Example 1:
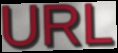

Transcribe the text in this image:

URL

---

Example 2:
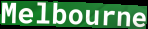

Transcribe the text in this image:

Melbourne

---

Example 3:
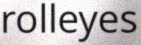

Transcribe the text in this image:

rolleyes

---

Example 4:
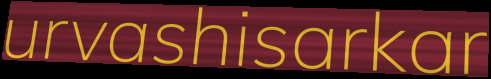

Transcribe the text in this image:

urvashisarkar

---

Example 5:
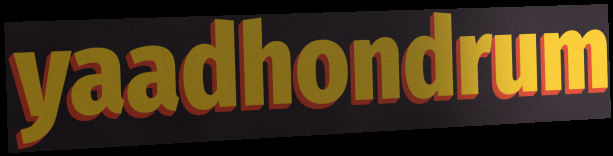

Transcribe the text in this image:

yaadhondrum